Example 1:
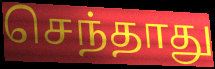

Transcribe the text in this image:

செந்தாது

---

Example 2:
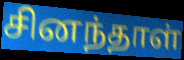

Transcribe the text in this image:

சினந்தாள்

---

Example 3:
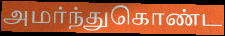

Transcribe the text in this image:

அமர்ந்துகொண்ட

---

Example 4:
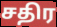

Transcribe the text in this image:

சதிர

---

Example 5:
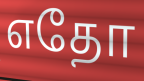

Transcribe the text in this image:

எதோ